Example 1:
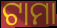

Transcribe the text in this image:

ଟାମା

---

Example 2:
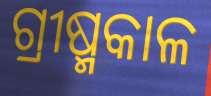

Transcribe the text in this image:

ଗ୍ରୀଷ୍ମକାଳ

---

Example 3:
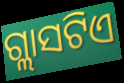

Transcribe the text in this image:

ଗ୍ଲାସଟିଏ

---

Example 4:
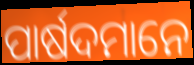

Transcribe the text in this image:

ପାର୍ଷଦମାନେ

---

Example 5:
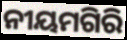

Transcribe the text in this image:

ନୀୟମଗିରି